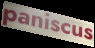
paniscus